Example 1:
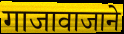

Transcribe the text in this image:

गाजावाजाने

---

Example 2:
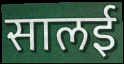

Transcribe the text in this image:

सालई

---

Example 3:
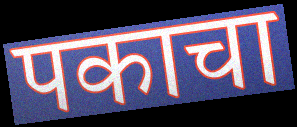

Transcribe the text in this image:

पकाचा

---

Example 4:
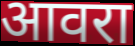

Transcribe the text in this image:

आवरा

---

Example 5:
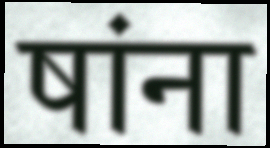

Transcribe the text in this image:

षांना